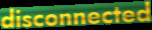
disconnected